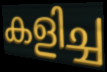
കളിച്ച